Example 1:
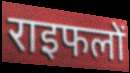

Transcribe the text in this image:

राइफलों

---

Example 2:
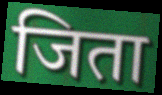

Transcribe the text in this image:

जिता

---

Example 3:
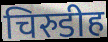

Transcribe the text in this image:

चिरुडीह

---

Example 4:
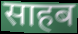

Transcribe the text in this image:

साहब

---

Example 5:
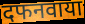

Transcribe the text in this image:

दफनवाया